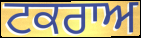
ਟਕਰਾਅ